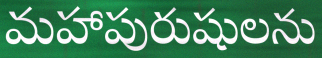
మహాపురుషులను